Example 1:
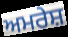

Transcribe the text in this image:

ਅਮਰੇਸ਼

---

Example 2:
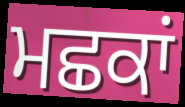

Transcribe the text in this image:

ਮਛਕਾਂ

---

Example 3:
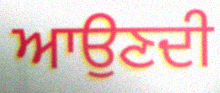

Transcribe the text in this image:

ਆਉਣਦੀ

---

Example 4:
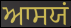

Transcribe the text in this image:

ਆਸਯਂ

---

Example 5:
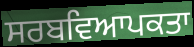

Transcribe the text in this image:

ਸਰਬਵਿਆਪਕਤਾ